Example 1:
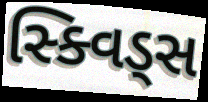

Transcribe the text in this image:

સ્ક્વિડ્સ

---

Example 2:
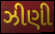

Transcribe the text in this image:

ઝીણી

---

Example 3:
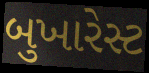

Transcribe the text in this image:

બુખારેસ્ટ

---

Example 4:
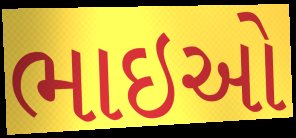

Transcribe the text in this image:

ભાઇઓ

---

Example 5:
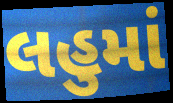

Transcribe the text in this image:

લહુમાં